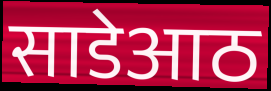
साडेआठ